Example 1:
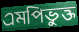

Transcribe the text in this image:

এমপিভুক্ত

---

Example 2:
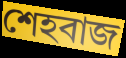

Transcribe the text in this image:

শেহবাজ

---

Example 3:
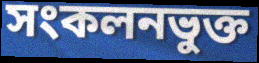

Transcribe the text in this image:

সংকলনভুক্ত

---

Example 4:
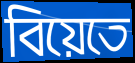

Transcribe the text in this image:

বিয়েতে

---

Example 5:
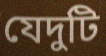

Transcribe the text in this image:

যেদুটি